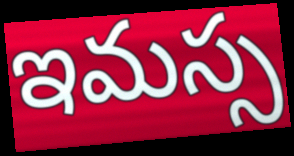
ఇమస్స